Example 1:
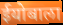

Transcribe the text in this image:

ईयोबाला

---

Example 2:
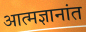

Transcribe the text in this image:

आत्मज्ञानांत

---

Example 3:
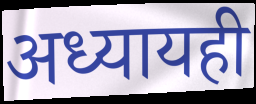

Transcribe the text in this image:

अध्यायही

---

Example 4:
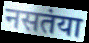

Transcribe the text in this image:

नसतंया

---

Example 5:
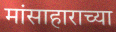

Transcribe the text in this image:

मांसाहाराच्या